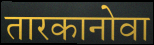
तारकानोवा